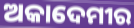
ଅକାଦେମୀର